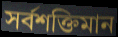
সর্বশক্তিমান